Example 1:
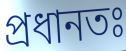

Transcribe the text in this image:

প্রধানতঃ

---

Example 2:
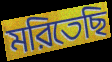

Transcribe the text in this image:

মরিতেছি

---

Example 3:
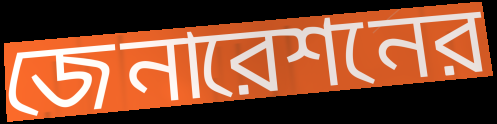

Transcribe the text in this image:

জেনারেশনের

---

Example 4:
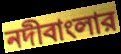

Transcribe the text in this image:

নদীবাংলার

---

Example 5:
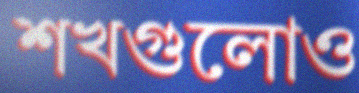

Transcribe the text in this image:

শখগুলোও